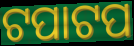
ଟପାଟପ